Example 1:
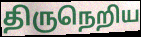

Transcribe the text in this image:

திருநெறிய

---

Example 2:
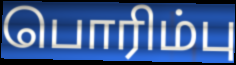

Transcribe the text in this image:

பொரிம்பு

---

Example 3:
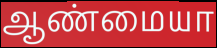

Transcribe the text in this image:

ஆண்மையா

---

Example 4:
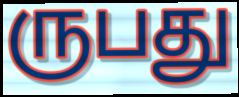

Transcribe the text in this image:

ருபது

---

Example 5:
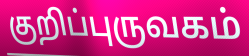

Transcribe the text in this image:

குறிப்புருவகம்